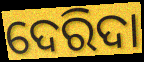
ଦେରିଦା